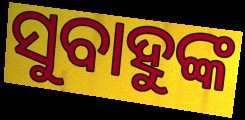
ସୁବାହୁଙ୍କ